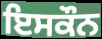
ਇਸਕੌਨ